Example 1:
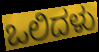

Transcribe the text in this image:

ಒಲಿದಳು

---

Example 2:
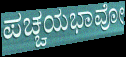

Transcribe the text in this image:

ಪಚ್ಚಯಭಾವೋ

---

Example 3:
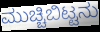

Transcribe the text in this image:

ಮುಚ್ಚಿಬಿಟ್ಟನು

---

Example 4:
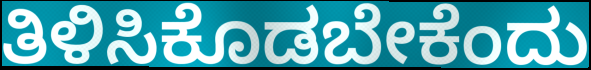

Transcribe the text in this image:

ತಿಳಿಸಿಕೊಡಬೇಕೆಂದು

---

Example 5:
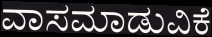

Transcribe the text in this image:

ವಾಸಮಾಡುವಿಕೆ